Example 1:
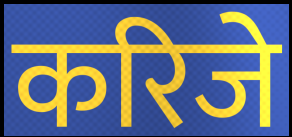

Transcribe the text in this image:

करिजे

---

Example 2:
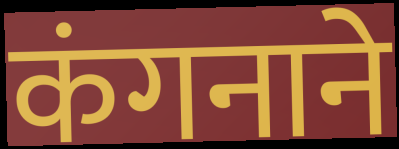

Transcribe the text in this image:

कंगनाने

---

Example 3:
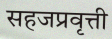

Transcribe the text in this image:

सहजप्रवृत्ती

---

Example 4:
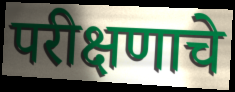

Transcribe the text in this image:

परीक्षणाचे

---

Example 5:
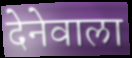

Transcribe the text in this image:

देनेवाला